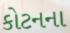
કોટનના